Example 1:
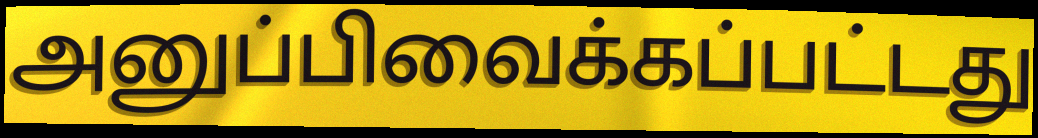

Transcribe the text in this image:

அனுப்பிவைக்கப்பட்டது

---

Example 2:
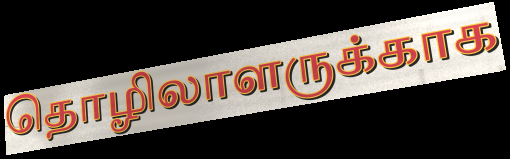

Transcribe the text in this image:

தொழிலாளருக்காக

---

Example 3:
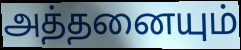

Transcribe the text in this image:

அத்தனையும்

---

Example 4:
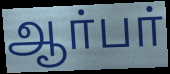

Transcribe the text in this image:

ஆர்பர்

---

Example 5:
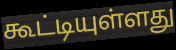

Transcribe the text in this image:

கூட்டியுள்ளது